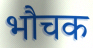
भौचक